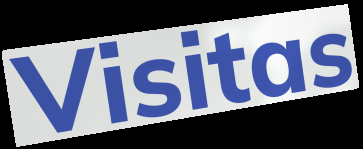
Visitas